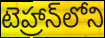
టెహ్రాన్‌లోని